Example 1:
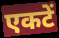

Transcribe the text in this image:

एकटें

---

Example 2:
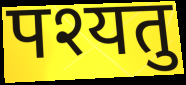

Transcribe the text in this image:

पश्यतु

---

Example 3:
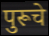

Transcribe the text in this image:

पुरूचे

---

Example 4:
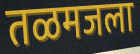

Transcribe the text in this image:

तळमजला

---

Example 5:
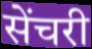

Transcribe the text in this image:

सेंचरी